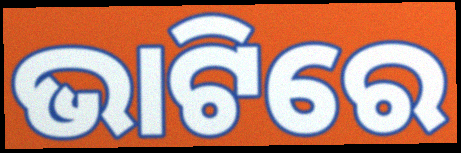
ଭାଟିରେ